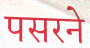
पसरने